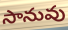
సానువు